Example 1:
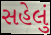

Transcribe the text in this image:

સહેલું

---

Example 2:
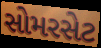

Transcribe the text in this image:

સોમરસેટ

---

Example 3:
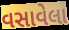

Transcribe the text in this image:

વસાવેલા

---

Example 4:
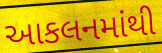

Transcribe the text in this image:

આકલનમાંથી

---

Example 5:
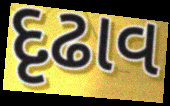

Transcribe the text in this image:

દૃઢાવ